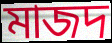
মাজদ